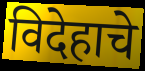
विदेहाचे